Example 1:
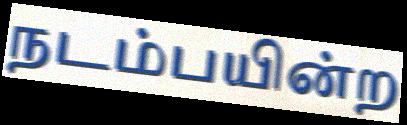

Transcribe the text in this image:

நடம்பயின்ற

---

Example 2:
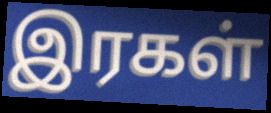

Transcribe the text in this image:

இரகள்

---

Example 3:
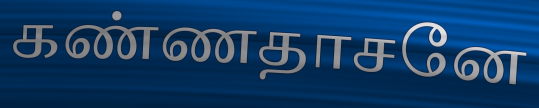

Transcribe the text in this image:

கண்ணதாசனே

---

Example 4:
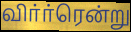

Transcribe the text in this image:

விர்ர்ரென்று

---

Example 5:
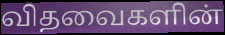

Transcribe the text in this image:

விதவைகளின்